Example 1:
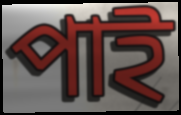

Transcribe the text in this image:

পাই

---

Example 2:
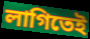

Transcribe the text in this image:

লাগিতেই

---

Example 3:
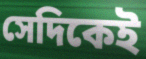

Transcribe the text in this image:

সেদিকেই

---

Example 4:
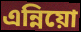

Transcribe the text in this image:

এন্নিয়ো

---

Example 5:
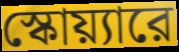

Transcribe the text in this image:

স্কোয়্যারে